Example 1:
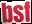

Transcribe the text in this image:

bsf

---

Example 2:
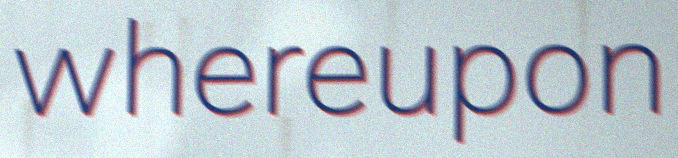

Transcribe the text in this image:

whereupon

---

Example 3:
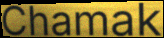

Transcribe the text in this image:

Chamak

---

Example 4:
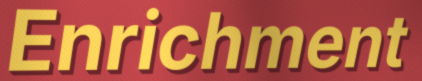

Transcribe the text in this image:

Enrichment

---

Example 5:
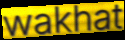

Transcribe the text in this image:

wakhat